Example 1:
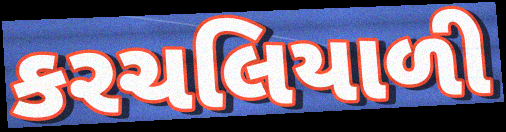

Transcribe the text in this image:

કરચલિયાળી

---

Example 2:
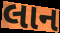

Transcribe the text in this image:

લાન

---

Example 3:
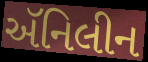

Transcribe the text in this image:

ઍનિલીન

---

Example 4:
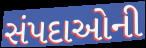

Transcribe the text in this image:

સંપદાઓની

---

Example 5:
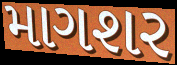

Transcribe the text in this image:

માગશર